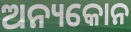
ଅନ୍ୟକୋନ